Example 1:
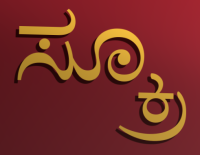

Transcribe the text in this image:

ಸ್ಕ್ರೂ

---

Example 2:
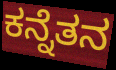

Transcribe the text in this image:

ಕನ್ನೆತನ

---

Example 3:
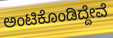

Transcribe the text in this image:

ಅಂಟಿಕೊಂಡಿದ್ದೇವೆ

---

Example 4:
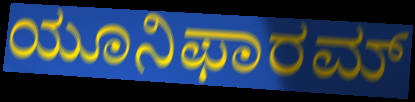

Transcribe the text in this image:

ಯೂನಿಫಾರಮ್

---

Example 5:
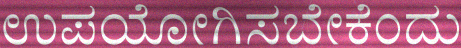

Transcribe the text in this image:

ಉಪಯೋಗಿಸಬೇಕೆಂದು